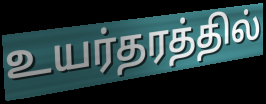
உயர்தரத்தில்